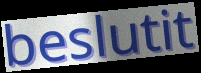
beslutit